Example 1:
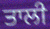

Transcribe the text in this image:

ਤਾਲੀ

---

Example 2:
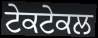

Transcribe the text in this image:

ਟੇਕਟੇਕਲ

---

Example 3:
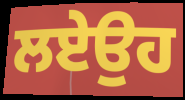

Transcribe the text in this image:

ਲਏਉਹ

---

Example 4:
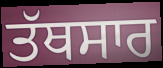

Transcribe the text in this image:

ਤੱਥਸਾਰ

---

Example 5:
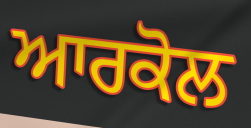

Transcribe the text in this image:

ਆਰਕੋਲ